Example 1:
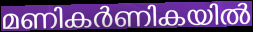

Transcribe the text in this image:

മണികർണികയിൽ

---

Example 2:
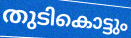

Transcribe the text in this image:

തുടികൊട്ടും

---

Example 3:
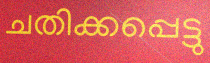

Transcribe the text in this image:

ചതിക്കപ്പെട്ടു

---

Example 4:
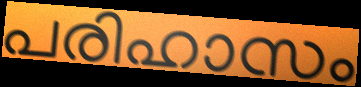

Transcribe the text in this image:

പരിഹാസം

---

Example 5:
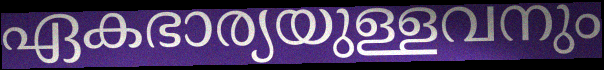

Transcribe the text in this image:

ഏകഭാര്യയുള്ളവനും